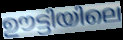
ഊട്ടിയിലെ